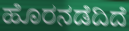
ಹೊರನಡೆದಿದೆ